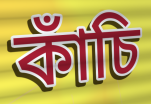
কাঁচি